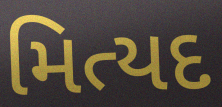
મિત્યદ